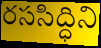
రససిద్ధిని